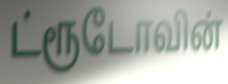
ட்ரூடோவின்